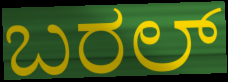
ಬರಲ್